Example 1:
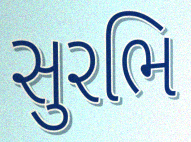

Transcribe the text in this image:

સુરભિ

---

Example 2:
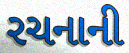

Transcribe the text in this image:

રચનાની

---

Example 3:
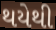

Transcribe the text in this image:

થયેથી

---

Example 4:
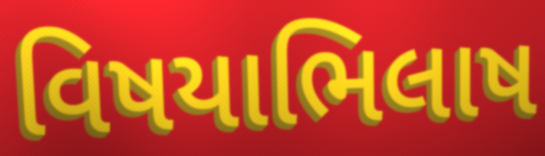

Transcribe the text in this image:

વિષયાભિલાષ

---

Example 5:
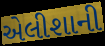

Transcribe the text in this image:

એલીશાની